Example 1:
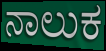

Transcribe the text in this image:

ನಾಲುಕ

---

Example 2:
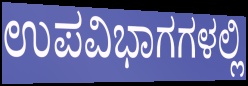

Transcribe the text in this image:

ಉಪವಿಭಾಗಗಳಲ್ಲಿ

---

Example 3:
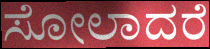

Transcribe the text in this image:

ಸೋಲಾದರೆ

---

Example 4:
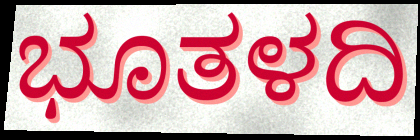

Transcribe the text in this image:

ಭೂತಳದಿ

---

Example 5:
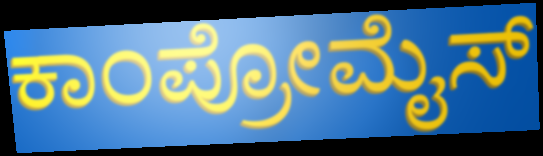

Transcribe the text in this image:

ಕಾಂಪ್ರೋಮೈಸ್